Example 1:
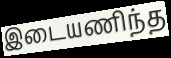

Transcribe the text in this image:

இடையணிந்த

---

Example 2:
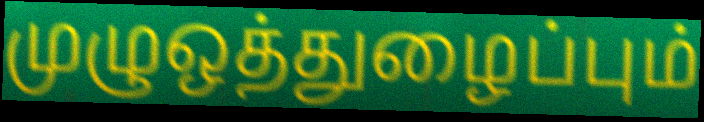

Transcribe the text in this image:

முழுஒத்துழைப்பும்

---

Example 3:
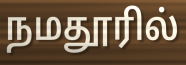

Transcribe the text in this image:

நமதூரில்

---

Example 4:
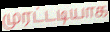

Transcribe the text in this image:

முரட்டடியாக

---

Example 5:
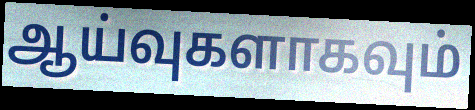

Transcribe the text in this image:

ஆய்வுகளாகவும்